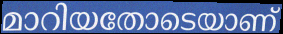
മാറിയതോടെയാണ്